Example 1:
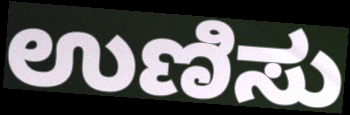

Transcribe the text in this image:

ಉಣಿಸು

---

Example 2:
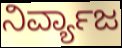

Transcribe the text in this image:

ನಿರ್ವ್ಯಾಜ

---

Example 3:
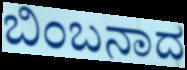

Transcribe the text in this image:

ಬಿಂಬನಾದ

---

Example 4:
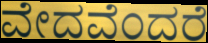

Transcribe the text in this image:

ವೇದವೆಂದರೆ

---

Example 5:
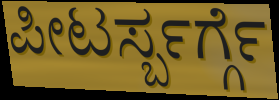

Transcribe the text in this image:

ಪೀಟರ್ಸ್ಬರ್ಗ್ಗೆ